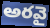
అరవై